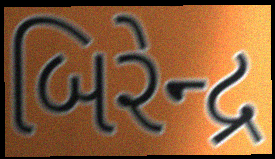
બિરેન્દ્ર